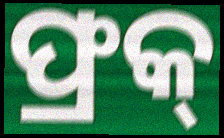
ଫ୍ରକ୍